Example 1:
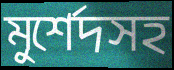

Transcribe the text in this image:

মুর্শেদসহ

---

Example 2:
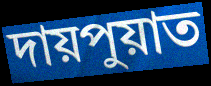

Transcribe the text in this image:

দায়পুয়াত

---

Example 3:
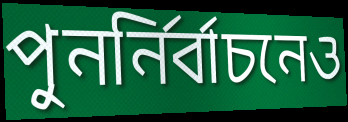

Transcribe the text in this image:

পুনর্নির্বাচনেও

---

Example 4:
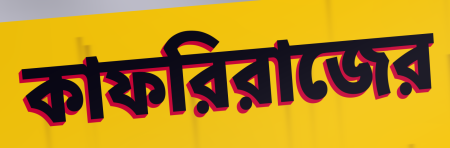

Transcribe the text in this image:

কাফরিরাজের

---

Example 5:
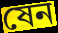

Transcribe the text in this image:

ষেন